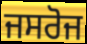
ਜਸਰੋਜ